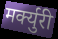
मर्क्युरी